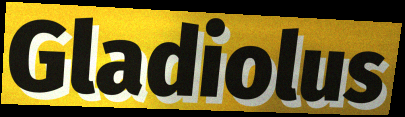
Gladiolus